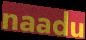
naadu